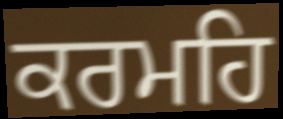
ਕਰਮਹਿ